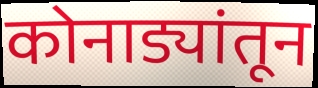
कोनाड्यांतून